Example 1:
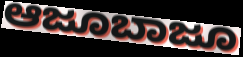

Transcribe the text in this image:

ಆಜೂಬಾಜೂ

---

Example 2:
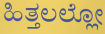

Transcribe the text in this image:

ಹಿತ್ತಲಲ್ಲೋ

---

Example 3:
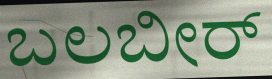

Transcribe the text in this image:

ಬಲಬೀರ್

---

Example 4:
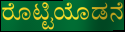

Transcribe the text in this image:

ರೊಟ್ಟಿಯೊಡನೆ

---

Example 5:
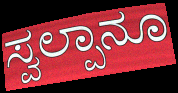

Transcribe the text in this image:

ಸ್ವಲ್ಪಾನೂ